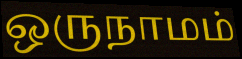
ஒருநாமம்